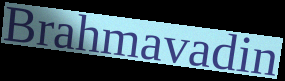
Brahmavadin